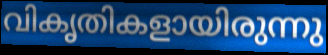
വികൃതികളായിരുന്നു